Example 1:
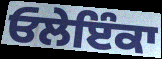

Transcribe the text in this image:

ਓਲੇਇੰਕਾ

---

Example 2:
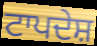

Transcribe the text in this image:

ਟਾਪਦੇਸ਼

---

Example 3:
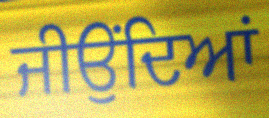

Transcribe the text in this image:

ਜੀਉਂਦਿਆਂ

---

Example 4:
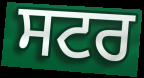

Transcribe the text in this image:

ਸਟਰ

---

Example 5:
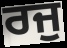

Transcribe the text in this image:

ਰਜੁ